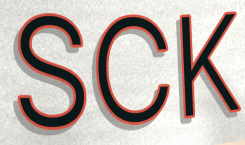
SCK